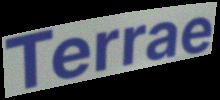
Terrae